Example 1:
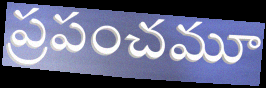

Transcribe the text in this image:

ప్రపంచమూ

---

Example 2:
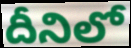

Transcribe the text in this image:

దీనిలో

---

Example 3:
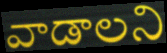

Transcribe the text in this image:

వాడాలని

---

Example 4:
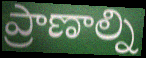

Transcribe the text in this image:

ప్రాణాల్ని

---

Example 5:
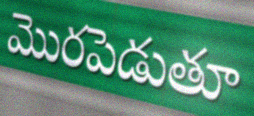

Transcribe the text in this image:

మొరపెడుతూ